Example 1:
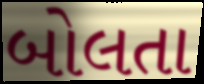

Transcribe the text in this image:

બોલતા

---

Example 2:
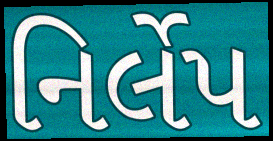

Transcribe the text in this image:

નિર્લેપ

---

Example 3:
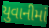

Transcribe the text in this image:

યુવાનીમાં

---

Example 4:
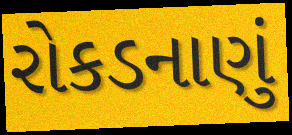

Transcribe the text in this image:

રોકડનાણું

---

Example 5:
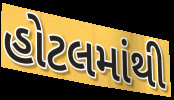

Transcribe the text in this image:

હોટલમાંથી